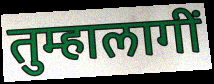
तुम्हालागीं